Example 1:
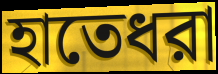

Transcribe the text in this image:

হাতেধরা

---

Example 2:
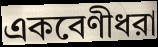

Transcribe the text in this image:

একবেণীধরা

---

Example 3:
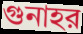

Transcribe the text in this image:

গুনাহর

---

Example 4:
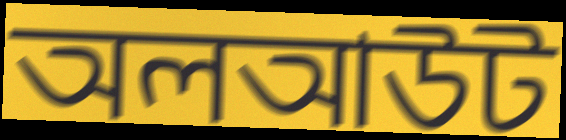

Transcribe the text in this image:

অলআউট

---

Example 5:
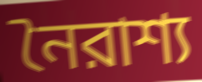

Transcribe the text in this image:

নৈরাশ্য